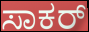
ಸಾಕರ್